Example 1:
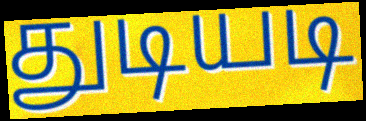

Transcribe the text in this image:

துடியடி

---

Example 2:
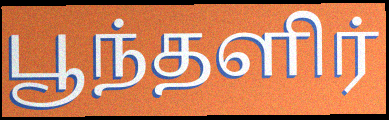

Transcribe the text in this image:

பூந்தளிர்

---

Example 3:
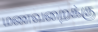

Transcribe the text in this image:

மணவறைக்கு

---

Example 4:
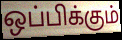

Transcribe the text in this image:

ஒப்பிக்கும்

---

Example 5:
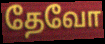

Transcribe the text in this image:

தேவோ